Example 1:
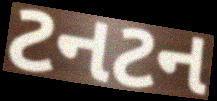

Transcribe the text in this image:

ટનટન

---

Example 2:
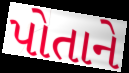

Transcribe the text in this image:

પોતાને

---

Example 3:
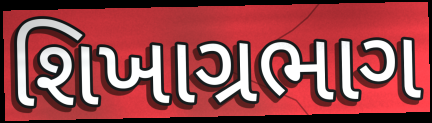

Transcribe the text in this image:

શિખાગ્રભાગ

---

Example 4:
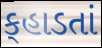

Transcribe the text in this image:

ક્‌હાડતાં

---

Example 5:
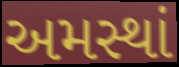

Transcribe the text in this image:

અમસ્થાં